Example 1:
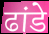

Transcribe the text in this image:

ढांडे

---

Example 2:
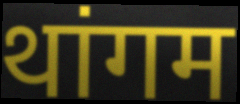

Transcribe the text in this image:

थांगम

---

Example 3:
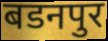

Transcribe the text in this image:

बडनपुर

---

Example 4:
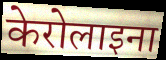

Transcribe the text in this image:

केरोलाइना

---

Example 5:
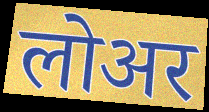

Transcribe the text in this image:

लोअर